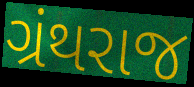
ગ્રંથરાજ